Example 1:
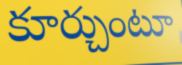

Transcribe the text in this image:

కూర్చుంటూ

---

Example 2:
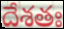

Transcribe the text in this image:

దేశతః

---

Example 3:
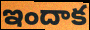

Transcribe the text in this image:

ఇందాక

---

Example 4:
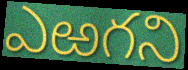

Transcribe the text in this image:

ఎఱగని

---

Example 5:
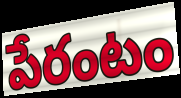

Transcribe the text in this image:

పేరంటం